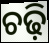
ଚଢ଼ି